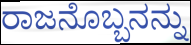
ರಾಜನೊಬ್ಬನನ್ನು